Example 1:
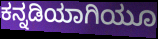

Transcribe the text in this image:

ಕನ್ನಡಿಯಾಗಿಯೂ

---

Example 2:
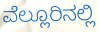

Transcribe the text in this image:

ವೆಲ್ಲೂರಿನಲ್ಲಿ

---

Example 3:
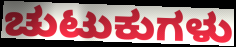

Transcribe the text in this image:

ಚುಟುಕುಗಳು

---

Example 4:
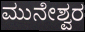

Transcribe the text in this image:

ಮುನೇಶ್ವರ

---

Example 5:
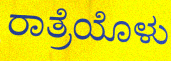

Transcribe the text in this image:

ರಾತ್ರೆಯೊಳು